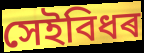
সেইবিধৰ